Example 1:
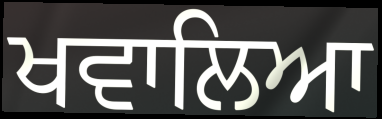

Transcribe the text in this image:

ਖਵਾਲਿਆ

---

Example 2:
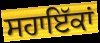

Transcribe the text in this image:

ਸਹਾਇੱਕਾਂ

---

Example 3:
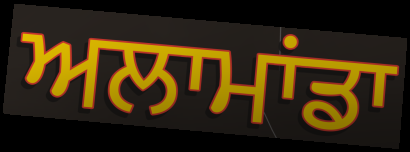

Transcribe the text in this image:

ਅਲਾਮਾਂਡਾ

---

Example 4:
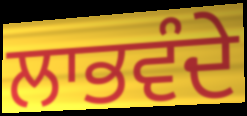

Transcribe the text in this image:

ਲਾਭਵੰਦੇ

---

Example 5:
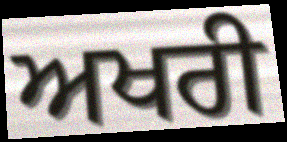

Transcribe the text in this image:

ਅਖਰੀ